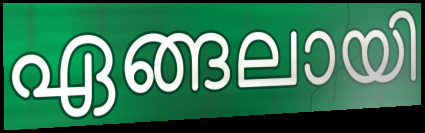
ഏങ്ങലായി